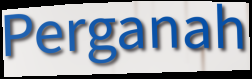
Perganah